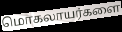
மொகலாயர்களை